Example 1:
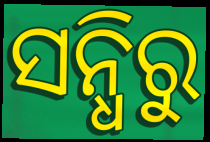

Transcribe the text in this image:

ସନ୍ଧିରୁ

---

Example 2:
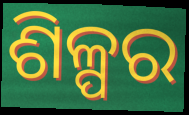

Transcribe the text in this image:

ଶିଳ୍ପର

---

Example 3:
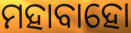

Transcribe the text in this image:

ମହାବାହୋ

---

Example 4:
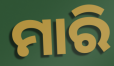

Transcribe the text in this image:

ମାରି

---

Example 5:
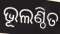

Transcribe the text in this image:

ଭୂଲଣ୍ଠିତ